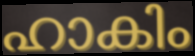
ഹാകിം